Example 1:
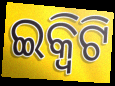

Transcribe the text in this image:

ଇକ୍ବିଟି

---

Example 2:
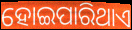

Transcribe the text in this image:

ହୋଇପାରିଥାଏ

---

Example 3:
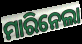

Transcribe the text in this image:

ମାରିନେଲା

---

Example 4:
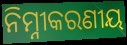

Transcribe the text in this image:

ନିମ୍ନୀକରଣୀୟ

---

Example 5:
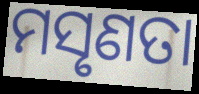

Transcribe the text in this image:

ମସୃଣତା